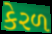
કેરળ